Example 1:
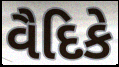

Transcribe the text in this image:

વૈદિકે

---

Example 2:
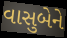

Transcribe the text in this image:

વાસુબેને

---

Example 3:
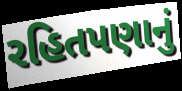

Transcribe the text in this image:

રહિતપણાનું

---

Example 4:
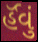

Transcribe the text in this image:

ર્હૅવું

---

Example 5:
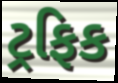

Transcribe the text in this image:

ટ્રફિક